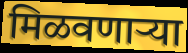
मिळवणाऱ्या